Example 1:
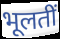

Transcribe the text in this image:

भूलतीं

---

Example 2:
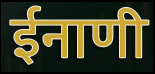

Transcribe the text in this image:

ईनाणी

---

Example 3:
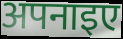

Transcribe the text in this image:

अपनाइए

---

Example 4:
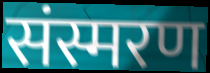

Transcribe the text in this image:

संस्मरण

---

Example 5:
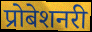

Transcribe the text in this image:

प्रोबेशनरी